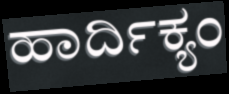
ಹಾರ್ದಿಕ್ಯಂ